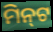
ମିନ୍‌ଟ